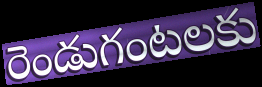
రెండుగంటలకు